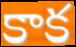
కాక